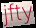
jfty